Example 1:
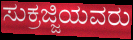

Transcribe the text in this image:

ಸುಕ್ರಜ್ಜಿಯವರು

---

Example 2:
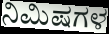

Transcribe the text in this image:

ನಿಮಿಷಗಳ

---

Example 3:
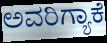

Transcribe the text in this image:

ಅವರಿಗ್ಯಾಕೆ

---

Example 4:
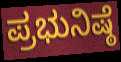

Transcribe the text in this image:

ಪ್ರಭುನಿಷ್ಠೆ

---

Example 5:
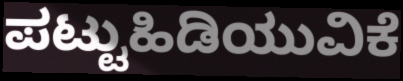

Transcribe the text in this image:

ಪಟ್ಟುಹಿಡಿಯುವಿಕೆ